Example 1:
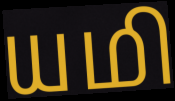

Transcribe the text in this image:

யமி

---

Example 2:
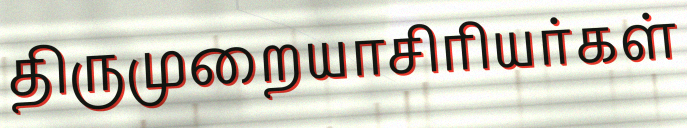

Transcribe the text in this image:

திருமுறையாசிரியர்கள்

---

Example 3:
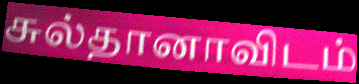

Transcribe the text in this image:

சுல்தானாவிடம்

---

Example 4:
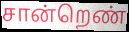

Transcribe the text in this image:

சான்றெண்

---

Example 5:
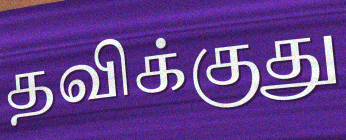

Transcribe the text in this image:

தவிக்குது